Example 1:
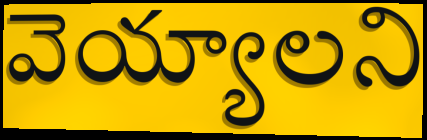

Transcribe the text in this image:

వెయ్యాలని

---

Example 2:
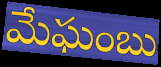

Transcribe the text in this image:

మేఘంబు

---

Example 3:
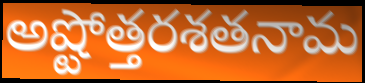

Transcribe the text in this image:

అష్టోత్తరశతనామ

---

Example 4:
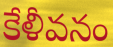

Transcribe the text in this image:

కేళీవనం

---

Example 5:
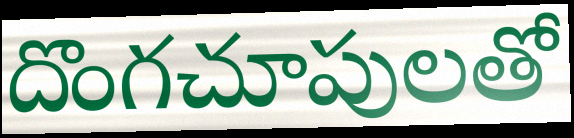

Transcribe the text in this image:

దొంగచూపులతో